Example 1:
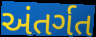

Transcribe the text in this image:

અંતર્ગત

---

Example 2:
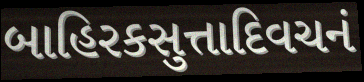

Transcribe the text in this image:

બાહિરકસુત્તાદિવચનં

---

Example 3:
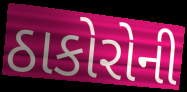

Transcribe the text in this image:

ઠાકોરોની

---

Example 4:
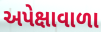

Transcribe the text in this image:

અપેક્ષાવાળા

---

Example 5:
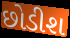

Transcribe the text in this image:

છોડીશ